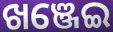
ଖଞ୍ଜେଇ